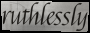
ruthlessly